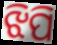
ଝିପି